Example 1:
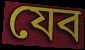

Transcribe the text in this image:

যেব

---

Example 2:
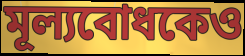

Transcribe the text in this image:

মূল্যবোধকেও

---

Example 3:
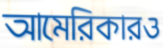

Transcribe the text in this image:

আমেরিকারও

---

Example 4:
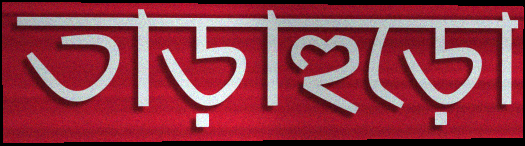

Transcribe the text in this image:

তাড়াহুড়ো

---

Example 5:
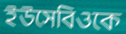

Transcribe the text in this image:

ইউসেবিওকে